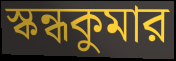
স্কন্ধকুমার